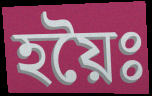
হয়ৈঃ